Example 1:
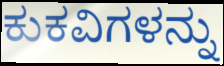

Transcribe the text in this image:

ಕುಕವಿಗಳನ್ನು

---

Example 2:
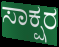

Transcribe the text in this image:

ಸಾಕ್ಷರ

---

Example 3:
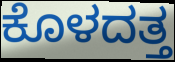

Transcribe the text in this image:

ಕೊಳದತ್ತ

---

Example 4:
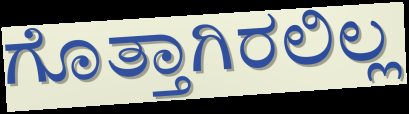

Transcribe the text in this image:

ಗೊತ್ತಾಗಿರಲಿಲ್ಲ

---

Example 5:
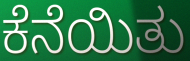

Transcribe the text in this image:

ಕೆನೆಯಿತು